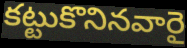
కట్టుకొనినవారై